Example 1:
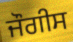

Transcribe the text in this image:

ਜੌਗੀਸ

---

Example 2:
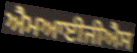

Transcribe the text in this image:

ਐਮਆਈਜੀਐਸ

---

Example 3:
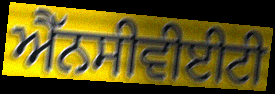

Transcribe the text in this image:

ਐੱਨਸੀਵੀਈਟੀ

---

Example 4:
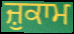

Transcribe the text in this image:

ਜ਼ੁਕਾਮ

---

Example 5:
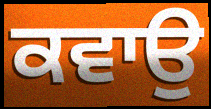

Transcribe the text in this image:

ਕਵਾਉ